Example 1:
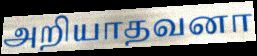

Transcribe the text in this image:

அறியாதவனா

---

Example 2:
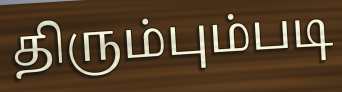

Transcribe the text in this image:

திரும்பும்படி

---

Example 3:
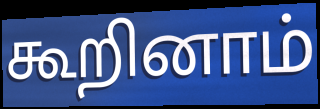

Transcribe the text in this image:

கூறினாம்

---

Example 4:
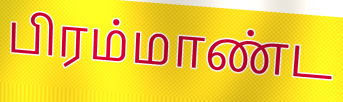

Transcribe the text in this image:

பிரம்மாண்ட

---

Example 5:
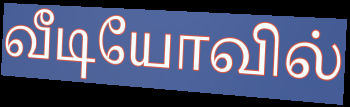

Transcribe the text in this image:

வீடியோவில்